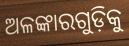
ଅଳଙ୍କାରଗୁଡ଼ିକୁ